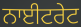
ਨਾਈਟਰੇਟ